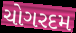
ચોગરદમ